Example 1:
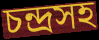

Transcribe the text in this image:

চন্দ্রসহ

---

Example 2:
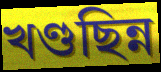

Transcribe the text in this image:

খণ্ডছিন্ন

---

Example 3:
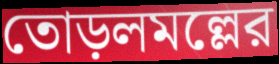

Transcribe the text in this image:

তোড়লমল্লের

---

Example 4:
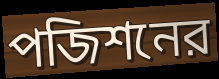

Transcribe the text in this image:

পজিশনের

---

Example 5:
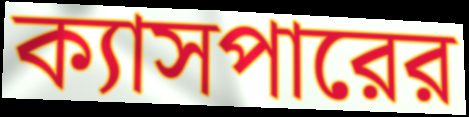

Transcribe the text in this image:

ক্যাসপারের